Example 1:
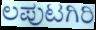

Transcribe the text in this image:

ಲಪುಟಗಿರಿ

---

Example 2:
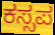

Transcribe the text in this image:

ಕಸ್ಸಪ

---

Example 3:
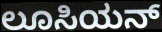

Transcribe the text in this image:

ಲೂಸಿಯನ್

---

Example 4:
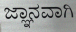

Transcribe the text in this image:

ಜ್ಞಾನವಾಗಿ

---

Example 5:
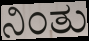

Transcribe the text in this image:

ನಿಂತು